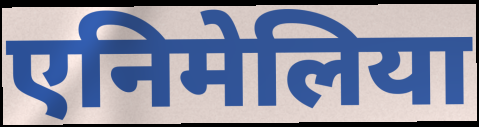
एनिमेलिया